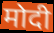
मोदी